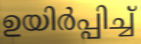
ഉയിർപ്പിച്ച്